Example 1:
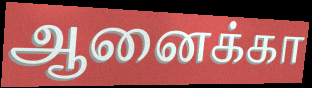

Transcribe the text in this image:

ஆனைக்கா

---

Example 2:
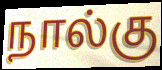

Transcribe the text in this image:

நால்கு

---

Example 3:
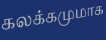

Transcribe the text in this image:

கலக்கமுமாக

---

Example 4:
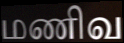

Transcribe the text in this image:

மணிவ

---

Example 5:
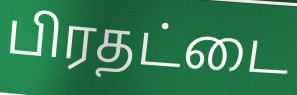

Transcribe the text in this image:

பிரதட்டை